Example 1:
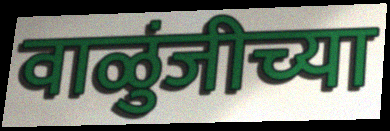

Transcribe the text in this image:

वाळुंजीच्या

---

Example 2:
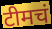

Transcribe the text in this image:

टीमचं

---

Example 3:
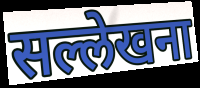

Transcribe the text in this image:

सल्लेखना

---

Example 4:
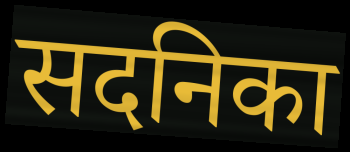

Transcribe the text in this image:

सदनिका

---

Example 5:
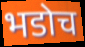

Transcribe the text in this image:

भडोच